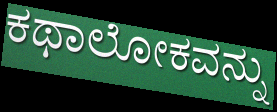
ಕಥಾಲೋಕವನ್ನು